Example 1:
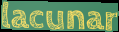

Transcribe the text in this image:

lacunar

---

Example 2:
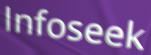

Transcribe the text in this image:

Infoseek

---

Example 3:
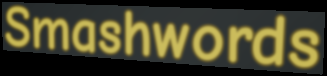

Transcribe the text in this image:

Smashwords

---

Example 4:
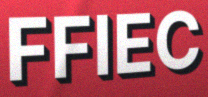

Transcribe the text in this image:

FFIEC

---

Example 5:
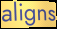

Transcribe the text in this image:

aligns